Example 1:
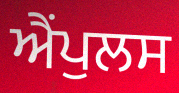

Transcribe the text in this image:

ਐਂਪੁਲਸ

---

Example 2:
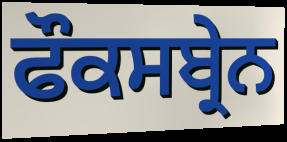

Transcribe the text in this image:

ਫੌਕਸਬ੍ਰੇਨ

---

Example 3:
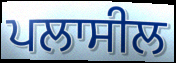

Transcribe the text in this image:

ਪਲਾਸੀਲ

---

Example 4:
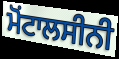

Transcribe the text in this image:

ਮੋਂਟਾਲਸੀਨੀ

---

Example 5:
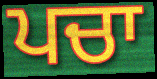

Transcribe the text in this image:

ਪਚਾ